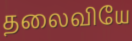
தலைவியே